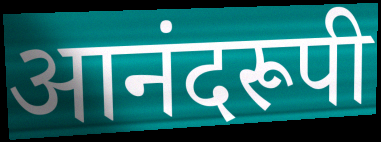
आनंदरूपी